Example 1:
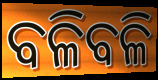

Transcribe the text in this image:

ବଳିବଳି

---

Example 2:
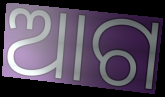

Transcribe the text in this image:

ଆଗ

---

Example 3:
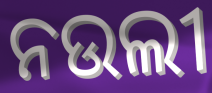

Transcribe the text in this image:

ନଉଲୀ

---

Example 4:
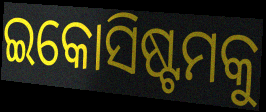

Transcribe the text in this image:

ଇକୋସିଷ୍ଟମକୁ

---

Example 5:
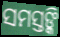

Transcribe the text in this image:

ସମସ୍ତଙ୍କି